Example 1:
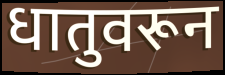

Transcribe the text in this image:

धातुवरून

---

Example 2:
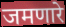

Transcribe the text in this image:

जमणारे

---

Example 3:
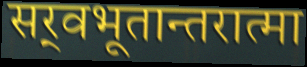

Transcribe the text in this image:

सर्वभूतान्तरात्मा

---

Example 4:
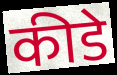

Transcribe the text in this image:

कीडे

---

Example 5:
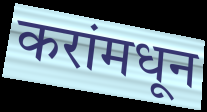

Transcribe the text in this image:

करांमधून